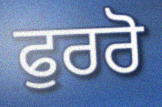
ਫੁਰਰੋ